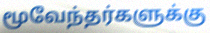
மூவேந்தர்களுக்கு